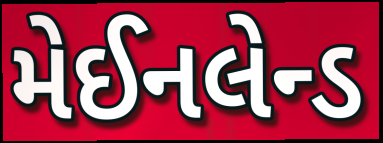
મેઈનલેન્ડ